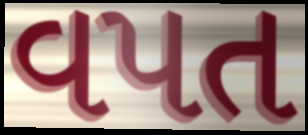
વપત